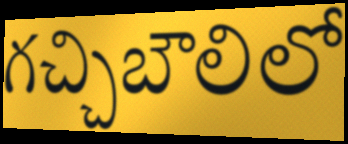
గచ్చిబౌలిలో